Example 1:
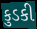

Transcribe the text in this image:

કુડકી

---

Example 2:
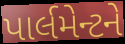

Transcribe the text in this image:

પાર્લમેન્ટને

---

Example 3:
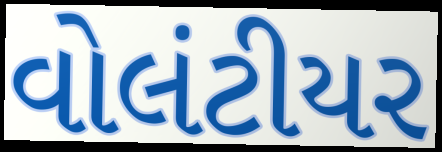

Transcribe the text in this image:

વોલંટીયર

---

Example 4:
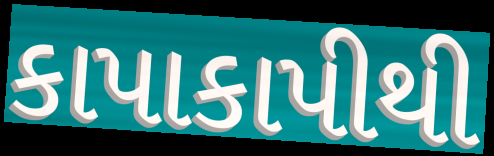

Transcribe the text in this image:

કાપાકાપીથી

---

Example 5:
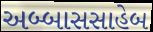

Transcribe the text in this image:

અબ્બાસસાહેબ